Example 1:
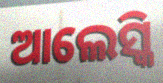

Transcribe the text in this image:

ଆଲେସ୍କି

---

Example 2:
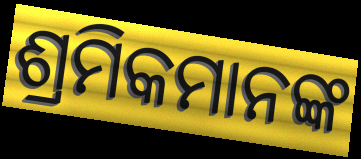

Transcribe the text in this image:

ଶ୍ରମିକମାନଙ୍କ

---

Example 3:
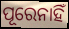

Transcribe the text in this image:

ପୂରେନାହିଁ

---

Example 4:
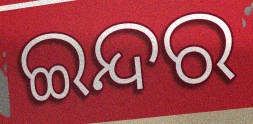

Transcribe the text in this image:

ଇନ୍ଦର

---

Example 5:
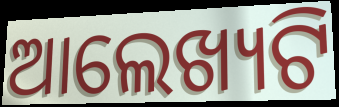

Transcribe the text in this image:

ଆଲେଖ୍ୟଟି